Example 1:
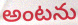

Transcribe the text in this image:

అంటను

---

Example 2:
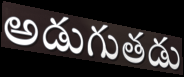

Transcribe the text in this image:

అడుగుతడు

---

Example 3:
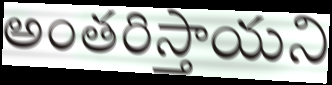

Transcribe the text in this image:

అంతరిస్తాయని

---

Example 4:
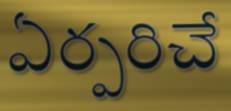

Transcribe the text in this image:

ఏర్పరిచే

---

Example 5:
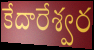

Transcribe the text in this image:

కేదారేశ్వర